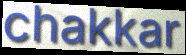
chakkar